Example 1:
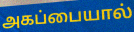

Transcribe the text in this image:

அகப்பையால்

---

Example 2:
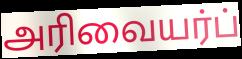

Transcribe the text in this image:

அரிவையர்ப்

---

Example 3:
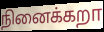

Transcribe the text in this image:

நினைக்கறா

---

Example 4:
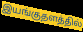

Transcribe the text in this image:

இயங்குதளத்தில்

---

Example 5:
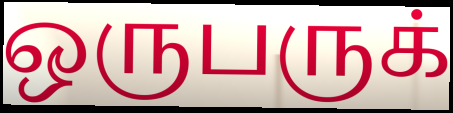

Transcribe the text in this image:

ஒருபருக்